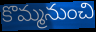
కొమ్మనుంచి